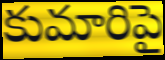
కుమారిపై